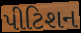
પીટિશન